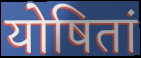
योषितां